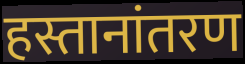
हस्तानांतरण